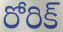
రోరిక్